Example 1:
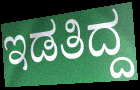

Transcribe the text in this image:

ಇಡತಿದ್ದ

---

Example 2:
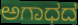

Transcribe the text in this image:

ಅಗಾಧದ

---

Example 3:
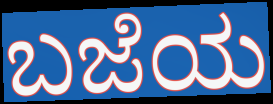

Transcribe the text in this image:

ಬಜೆಯ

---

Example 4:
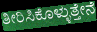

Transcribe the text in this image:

ತೀರಿಸಿಕೊಳ್ಳುತ್ತೇನೆ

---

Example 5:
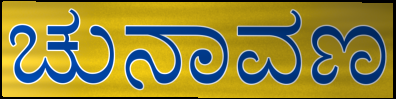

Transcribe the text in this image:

ಚುನಾವಣ